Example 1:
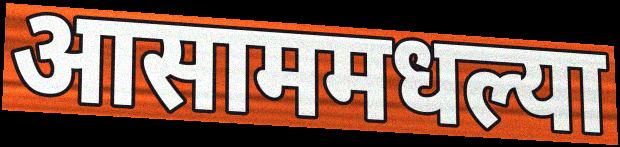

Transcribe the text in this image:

आसाममधल्या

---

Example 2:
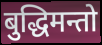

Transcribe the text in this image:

बुद्धिमन्तो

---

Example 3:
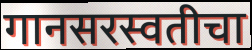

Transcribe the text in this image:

गानसरस्वतीचा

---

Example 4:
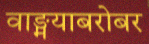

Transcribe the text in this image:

वाङ्मयाबरोबर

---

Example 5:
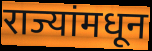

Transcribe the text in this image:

राज्यांमधून